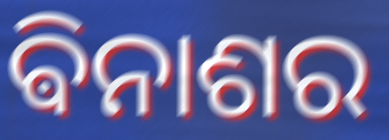
ଵିନାଶର